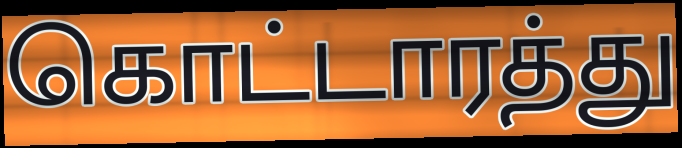
கொட்டாரத்து